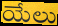
యేలు